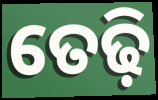
ତେଢ଼ି